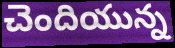
చెందియున్న